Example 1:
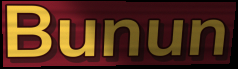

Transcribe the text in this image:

Bunun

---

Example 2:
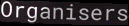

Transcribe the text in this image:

Organisers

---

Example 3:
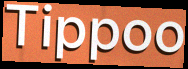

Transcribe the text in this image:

Tippoo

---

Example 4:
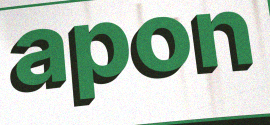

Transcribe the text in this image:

apon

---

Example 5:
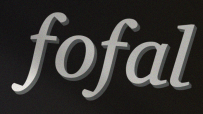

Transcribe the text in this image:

fofal